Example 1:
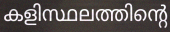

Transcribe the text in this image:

കളിസ്ഥലത്തിന്റെ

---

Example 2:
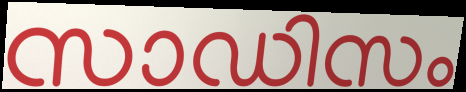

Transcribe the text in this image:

സാഡിസം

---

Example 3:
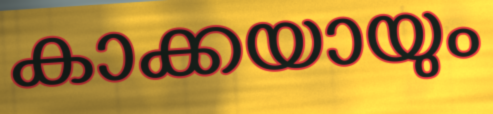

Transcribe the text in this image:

കാക്കയായും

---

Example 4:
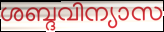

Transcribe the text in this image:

ശബ്ദവിന്യാസ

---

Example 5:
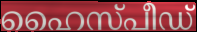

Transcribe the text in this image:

ഹൈസ്പീഡ്